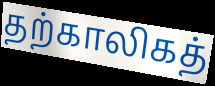
தற்காலிகத்